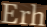
Erh